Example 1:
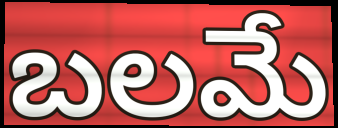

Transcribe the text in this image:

బలమే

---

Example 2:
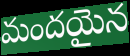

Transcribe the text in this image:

మందయైన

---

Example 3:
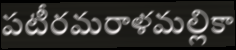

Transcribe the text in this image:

పటీరమరాళమల్లికా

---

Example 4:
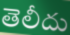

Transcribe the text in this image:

తెలీదు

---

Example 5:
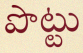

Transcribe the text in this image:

పొట్టు